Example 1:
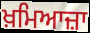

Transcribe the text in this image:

ਖ਼ਮਿਆਜ਼ਾ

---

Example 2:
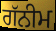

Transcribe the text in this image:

ਗੱਨੀਮ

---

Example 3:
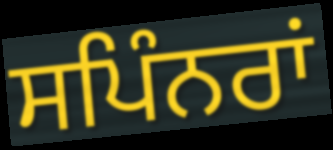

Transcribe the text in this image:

ਸਪਿੰਨਰਾਂ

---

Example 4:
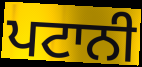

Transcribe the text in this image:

ਪਟਾਨੀ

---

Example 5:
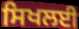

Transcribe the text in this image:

ਸਿਖਲਈ